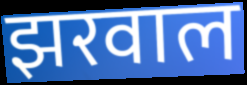
झरवाल